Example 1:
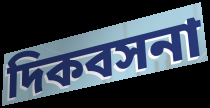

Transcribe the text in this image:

দিকবসনা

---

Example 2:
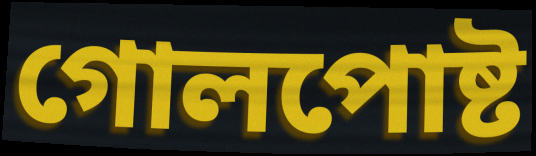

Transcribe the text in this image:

গোলপোষ্ট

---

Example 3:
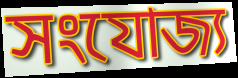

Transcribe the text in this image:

সংযোজ্য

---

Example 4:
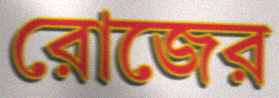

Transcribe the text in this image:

রোজের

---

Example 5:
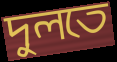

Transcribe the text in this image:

দুলতে